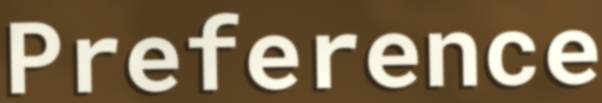
Preference